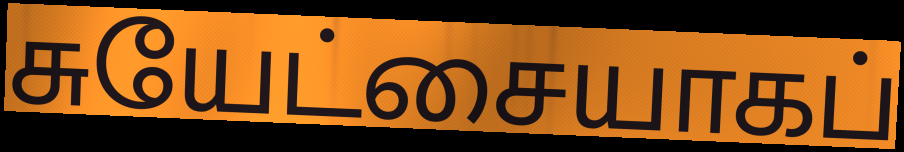
சுயேட்சையாகப்